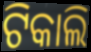
ଟିକାଲି